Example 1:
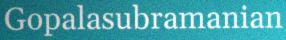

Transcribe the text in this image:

Gopalasubramanian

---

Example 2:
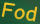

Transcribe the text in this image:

Fod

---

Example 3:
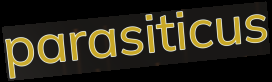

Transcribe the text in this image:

parasiticus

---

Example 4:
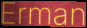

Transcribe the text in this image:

Erman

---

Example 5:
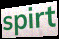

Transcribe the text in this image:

spirt